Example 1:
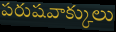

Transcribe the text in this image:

పరుషవాక్కులు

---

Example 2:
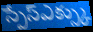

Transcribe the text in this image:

స్పేస్ఎక్స్కు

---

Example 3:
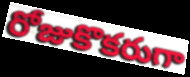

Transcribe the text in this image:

రోజుకొకరుగా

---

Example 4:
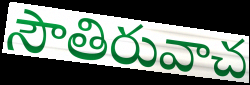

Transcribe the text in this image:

సౌతిరువాచ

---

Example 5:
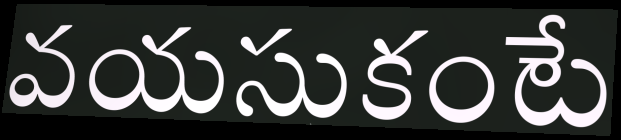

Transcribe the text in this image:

వయసుకంటే